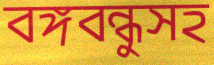
বঙ্গবন্ধুসহ